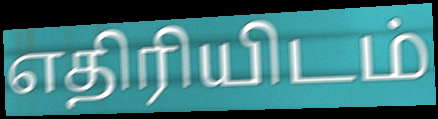
எதிரியிடம்